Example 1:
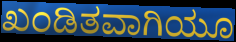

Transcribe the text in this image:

ಖಂಡಿತವಾಗಿಯೂ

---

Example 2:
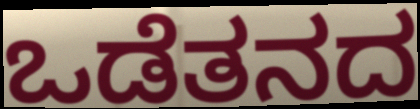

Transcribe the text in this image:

ಒಡೆತನದ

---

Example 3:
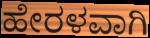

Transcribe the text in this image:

ಹೇರಳವಾಗಿ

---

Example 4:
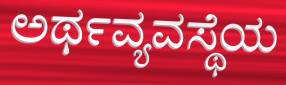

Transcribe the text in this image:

ಅರ್ಥವ್ಯವಸ್ಥೆಯ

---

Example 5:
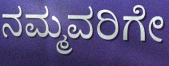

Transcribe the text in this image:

ನಮ್ಮವರಿಗೇ